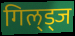
गिल्ड्ज